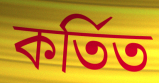
কর্তিত